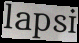
lapsi